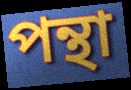
পন্থা